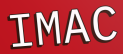
IMAC